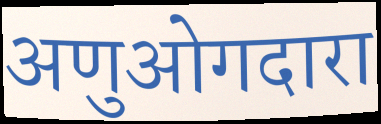
अणुओगदारा